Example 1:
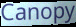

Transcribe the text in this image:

Canopy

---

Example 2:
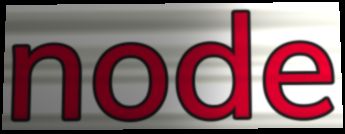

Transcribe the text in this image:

node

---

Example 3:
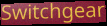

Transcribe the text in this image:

Switchgear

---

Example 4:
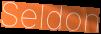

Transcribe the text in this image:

Seldon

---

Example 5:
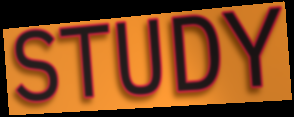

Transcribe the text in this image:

STUDY